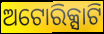
ଅଟୋରିକ୍ସାଟି